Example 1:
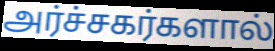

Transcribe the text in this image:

அர்ச்சகர்களால்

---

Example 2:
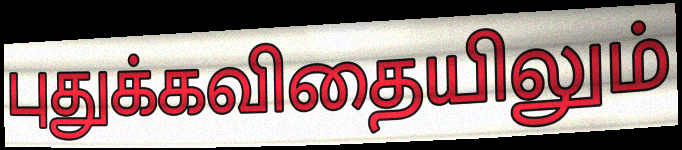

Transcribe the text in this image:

புதுக்கவிதையிலும்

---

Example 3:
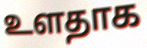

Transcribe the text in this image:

உளதாக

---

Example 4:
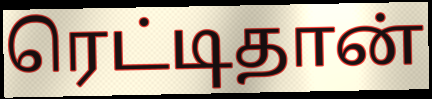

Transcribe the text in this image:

ரெட்டிதான்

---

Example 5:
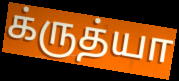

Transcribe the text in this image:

க்ருத்யா